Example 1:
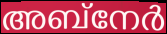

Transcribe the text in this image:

അബ്നേർ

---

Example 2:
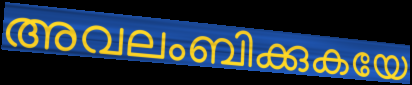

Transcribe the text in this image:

അവലംബിക്കുകയേ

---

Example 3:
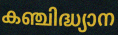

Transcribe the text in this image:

കഞ്ചിദ്ധ്യാന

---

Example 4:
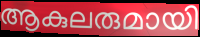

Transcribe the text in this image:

ആകുലരുമായി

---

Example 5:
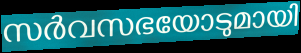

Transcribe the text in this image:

സർവസഭയോടുമായി